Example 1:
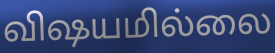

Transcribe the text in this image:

விஷயமில்லை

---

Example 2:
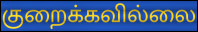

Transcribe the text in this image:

குறைக்கவில்லை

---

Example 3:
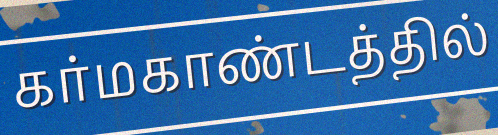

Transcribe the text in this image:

கர்மகாண்டத்தில்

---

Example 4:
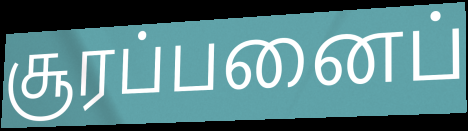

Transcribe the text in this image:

சூரப்பனைப்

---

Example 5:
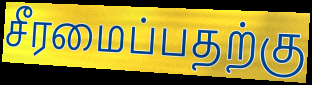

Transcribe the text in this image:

சீரமைப்பதற்கு